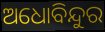
ଅଧୋବିନ୍ଦୁର